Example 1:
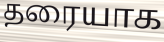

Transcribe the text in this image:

தரையாக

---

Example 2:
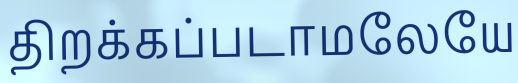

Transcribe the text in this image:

திறக்கப்படாமலேயே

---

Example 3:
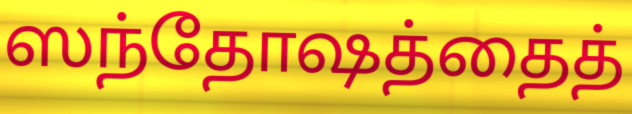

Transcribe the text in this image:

ஸந்தோஷத்தைத்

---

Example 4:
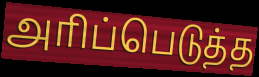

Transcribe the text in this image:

அரிப்பெடுத்த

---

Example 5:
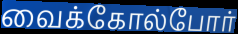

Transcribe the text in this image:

வைக்கோல்போர்